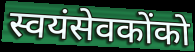
स्वयंसेवकोंको